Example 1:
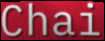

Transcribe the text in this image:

Chai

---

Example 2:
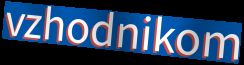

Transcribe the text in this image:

vzhodnikom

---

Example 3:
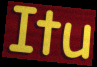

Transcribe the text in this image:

Itu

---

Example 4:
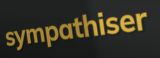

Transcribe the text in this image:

sympathiser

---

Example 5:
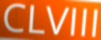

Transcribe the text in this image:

CLVIII